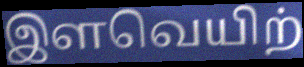
இளவெயிற்